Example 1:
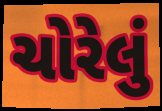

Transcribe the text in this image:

ચોરેલું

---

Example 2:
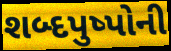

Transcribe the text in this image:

શબ્દપુષ્પોની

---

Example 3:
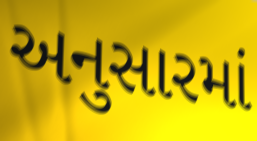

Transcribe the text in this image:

અનુસારમાં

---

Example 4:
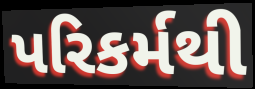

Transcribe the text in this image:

પરિકર્મથી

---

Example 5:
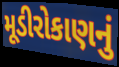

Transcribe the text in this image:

મૂડીરોકાણનું